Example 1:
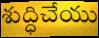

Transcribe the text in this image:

శుద్ధిచేయు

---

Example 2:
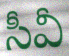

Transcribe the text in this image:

సీవీ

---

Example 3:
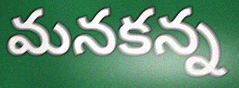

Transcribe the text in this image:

మనకన్న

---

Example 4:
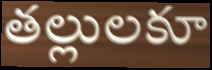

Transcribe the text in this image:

తల్లులకూ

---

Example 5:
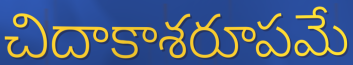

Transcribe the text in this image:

చిదాకాశరూపమే